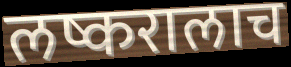
लष्करालाच